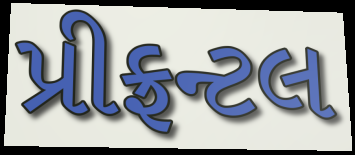
પ્રીફ્રન્ટલ